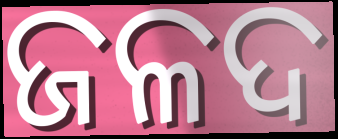
ଜଳଦ